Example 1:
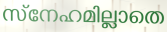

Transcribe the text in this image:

സ്‌നേഹമില്ലാതെ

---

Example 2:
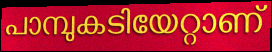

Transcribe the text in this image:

പാമ്പുകടിയേറ്റാണ്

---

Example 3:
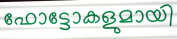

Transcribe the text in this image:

ഫോട്ടോകളുമായി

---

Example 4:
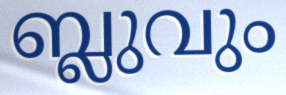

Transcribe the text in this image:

ബ്ലുവും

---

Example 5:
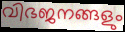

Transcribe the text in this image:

വിഭജനങ്ങളും